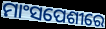
ମାଂସପେଶୀରେ